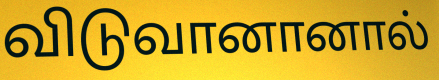
விடுவானானால்